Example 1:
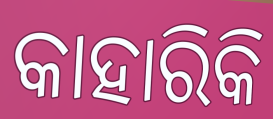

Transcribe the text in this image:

କାହାରିକି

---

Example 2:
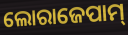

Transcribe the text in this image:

ଲୋରାଜେପାମ୍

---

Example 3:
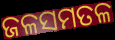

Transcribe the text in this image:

ଜଳସମତଳ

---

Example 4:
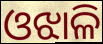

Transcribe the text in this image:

ଓଝାଳି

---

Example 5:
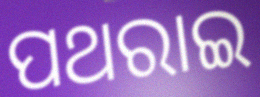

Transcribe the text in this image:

ପଥରାଇ